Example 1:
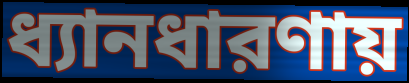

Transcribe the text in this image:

ধ্যানধারণায়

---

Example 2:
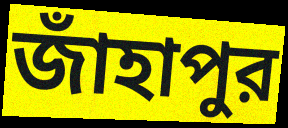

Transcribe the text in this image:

জাঁহাপুর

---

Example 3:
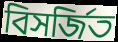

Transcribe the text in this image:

বিসর্জিত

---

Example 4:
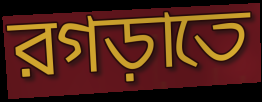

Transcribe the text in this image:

রগড়াতে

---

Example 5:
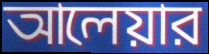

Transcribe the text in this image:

আলেয়ার